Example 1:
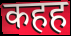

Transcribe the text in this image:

कहह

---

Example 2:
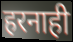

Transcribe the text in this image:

हरनाही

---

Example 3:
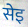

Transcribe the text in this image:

सेइ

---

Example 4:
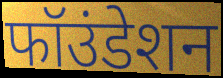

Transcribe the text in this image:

फॉउंडेशन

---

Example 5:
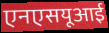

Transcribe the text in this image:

एनएसयूआई